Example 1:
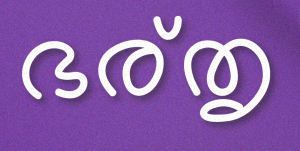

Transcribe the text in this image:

ഭര്തൃ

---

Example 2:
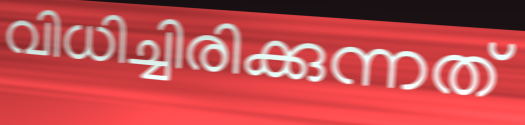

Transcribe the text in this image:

വിധിച്ചിരിക്കുന്നത്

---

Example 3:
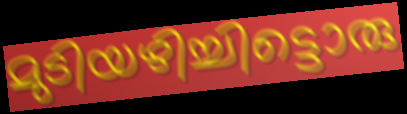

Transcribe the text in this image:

മുടിയഴിച്ചിട്ടൊരു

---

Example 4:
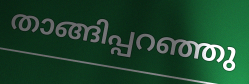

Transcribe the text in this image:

താങ്ങിപ്പറഞ്ഞു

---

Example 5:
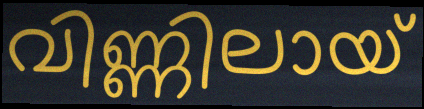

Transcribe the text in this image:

വിണ്ണിലായ്